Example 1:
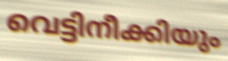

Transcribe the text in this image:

വെട്ടിനീക്കിയും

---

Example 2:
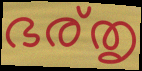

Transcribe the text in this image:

ഭര്തൃ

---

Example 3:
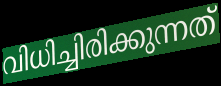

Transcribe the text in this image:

വിധിച്ചിരിക്കുന്നത്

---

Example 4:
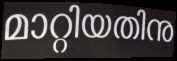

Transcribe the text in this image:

മാറ്റിയതിനു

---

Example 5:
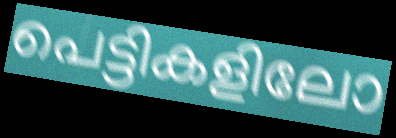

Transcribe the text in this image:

പെട്ടികളിലോ